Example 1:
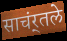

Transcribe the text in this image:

साचंर्तले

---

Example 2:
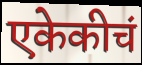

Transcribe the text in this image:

एकेकीचं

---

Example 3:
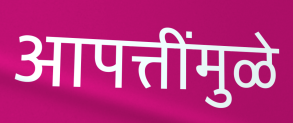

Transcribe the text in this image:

आपत्तींमुळे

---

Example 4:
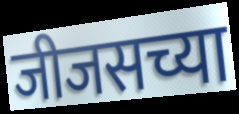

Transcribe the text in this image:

जीजसच्या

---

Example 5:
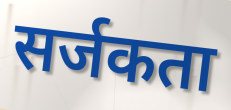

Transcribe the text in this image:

सर्जकता